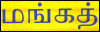
மங்கத்